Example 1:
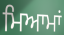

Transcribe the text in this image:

ਮਿਆਮਾਂ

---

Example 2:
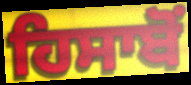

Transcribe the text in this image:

ਹਿਸਾਬੋਂ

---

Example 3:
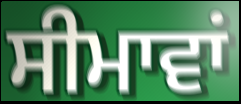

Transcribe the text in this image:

ਸੀਮਾਵਾਂ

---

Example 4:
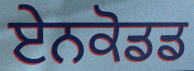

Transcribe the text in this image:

ਏਨਕੋਡਡ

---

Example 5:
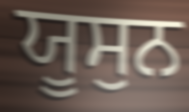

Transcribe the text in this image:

ਯੂਸੁਨ